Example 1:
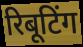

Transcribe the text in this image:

रिबूटिंग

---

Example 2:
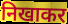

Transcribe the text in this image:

निखाकर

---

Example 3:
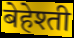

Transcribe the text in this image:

बेहेश्ती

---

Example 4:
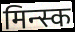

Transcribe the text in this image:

मिन्स्क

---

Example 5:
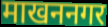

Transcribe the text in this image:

माखननगर